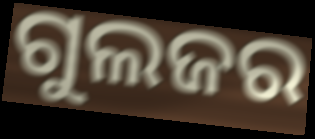
ଗୁଲଜର